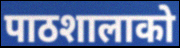
पाठशालाको